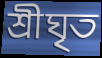
শ্রীঘৃত